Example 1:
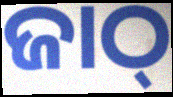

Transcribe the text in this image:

ଜାଠ୍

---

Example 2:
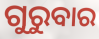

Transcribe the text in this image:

ଗୁରୁବାର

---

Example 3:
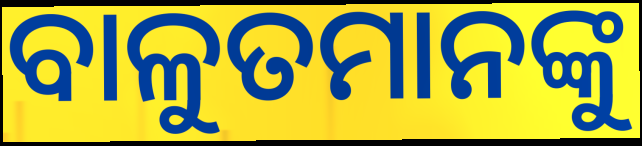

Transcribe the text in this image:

ବାଳୁତମାନଙ୍କୁ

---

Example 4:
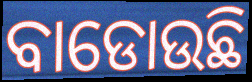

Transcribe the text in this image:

ବାଡୋଉଛି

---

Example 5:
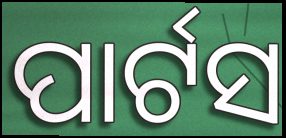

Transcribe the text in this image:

ପାର୍ଟସ